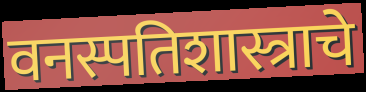
वनस्पतिशास्त्राचे